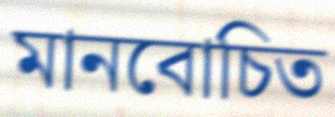
মানবোচিত